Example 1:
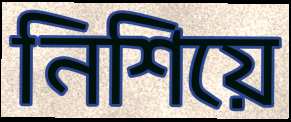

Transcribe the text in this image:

নিশিয়ে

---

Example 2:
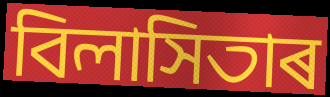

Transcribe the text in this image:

বিলাসিতাৰ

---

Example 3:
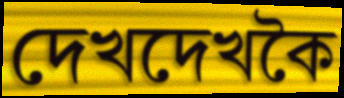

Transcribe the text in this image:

দেখদেখকৈ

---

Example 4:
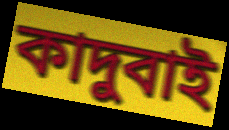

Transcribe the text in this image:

কাদুবাই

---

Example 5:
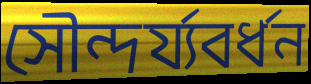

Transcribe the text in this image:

সৌন্দৰ্য্যবৰ্ধন